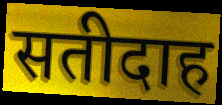
सतीदाह